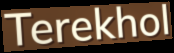
Terekhol